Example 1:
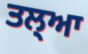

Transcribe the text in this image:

ਤਲ੍ਆ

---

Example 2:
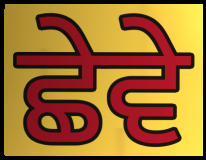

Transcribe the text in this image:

ਛੇਵੇ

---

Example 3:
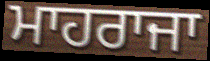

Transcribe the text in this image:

ਮਾਹਰਾਜਾ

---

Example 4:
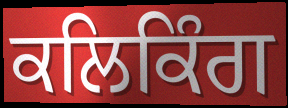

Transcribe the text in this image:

ਕਲਿਕਿੰਗ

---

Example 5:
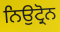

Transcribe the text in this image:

ਨਿਉਟ੍ਰੋਨ